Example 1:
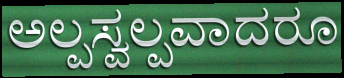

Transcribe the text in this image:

ಅಲ್ಪಸ್ವಲ್ಪವಾದರೂ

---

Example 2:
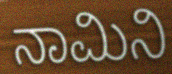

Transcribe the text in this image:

ನಾಮಿನಿ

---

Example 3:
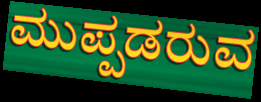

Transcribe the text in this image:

ಮುಪ್ಪಡರುವ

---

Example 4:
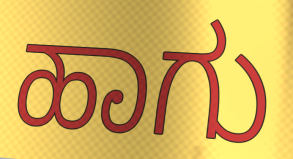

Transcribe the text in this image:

ಹಾಗು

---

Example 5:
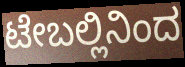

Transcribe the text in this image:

ಟೇಬಲ್ಲಿನಿಂದ